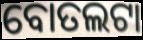
ବୋତଲଟା